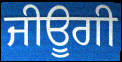
ਜੀਊਗੀ